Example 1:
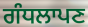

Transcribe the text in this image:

ਗੰਧਲਾਪਣ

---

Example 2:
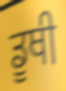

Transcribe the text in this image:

ਡੂਥੀ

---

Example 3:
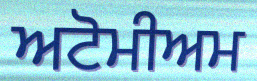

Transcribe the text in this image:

ਅਟੋਮੀਅਮ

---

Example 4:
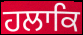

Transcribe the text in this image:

ਹਲਾਕਿ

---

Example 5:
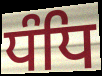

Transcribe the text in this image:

ਧੰਧਿ